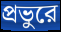
প্রভুরে